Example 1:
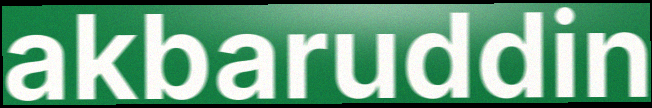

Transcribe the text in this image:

akbaruddin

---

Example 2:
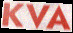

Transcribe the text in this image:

KVA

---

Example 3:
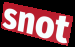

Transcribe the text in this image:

snot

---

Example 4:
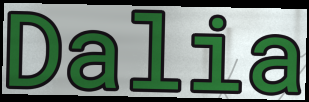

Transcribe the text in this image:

Dalia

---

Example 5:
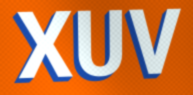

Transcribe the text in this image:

XUV